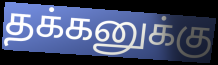
தக்கனுக்கு